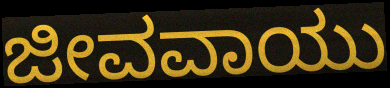
ಜೀವವಾಯು